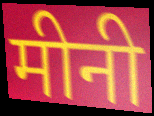
मीनी